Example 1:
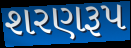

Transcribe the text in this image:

શરણરૂપ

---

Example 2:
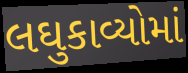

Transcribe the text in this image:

લઘુકાવ્યોમાં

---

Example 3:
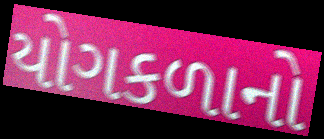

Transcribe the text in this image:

યોગકળાનો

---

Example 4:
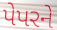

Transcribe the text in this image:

પેપરને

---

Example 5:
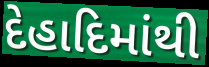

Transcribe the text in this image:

દેહાદિમાંથી